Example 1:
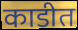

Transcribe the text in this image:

काडीत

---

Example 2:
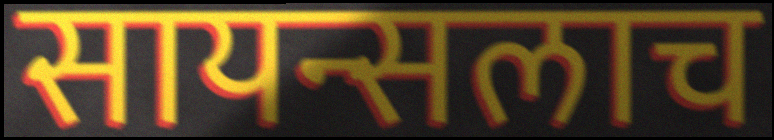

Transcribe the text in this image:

सायन्सलाच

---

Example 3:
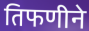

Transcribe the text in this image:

तिफणीने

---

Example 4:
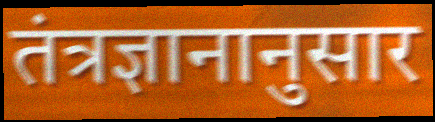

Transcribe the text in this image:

तंत्रज्ञानानुसार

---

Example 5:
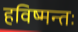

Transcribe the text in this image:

हविष्मन्तः